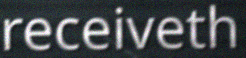
receiveth